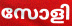
സോളി